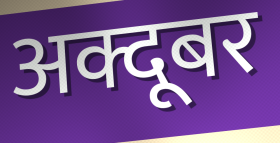
अक्दूबर